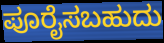
ಪೂರೈಸಬಹುದು